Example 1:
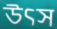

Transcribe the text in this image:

উৎস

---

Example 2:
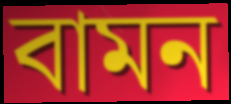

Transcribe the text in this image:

বামন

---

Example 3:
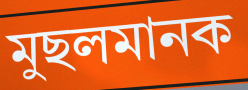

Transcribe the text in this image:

মুছলমানক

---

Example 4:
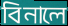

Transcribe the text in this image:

বিনালে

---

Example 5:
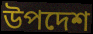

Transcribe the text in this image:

উপদেশ